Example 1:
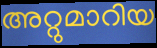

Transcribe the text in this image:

അറ്റുമാറിയ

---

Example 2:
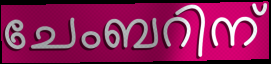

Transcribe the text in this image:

ചേംബറിന്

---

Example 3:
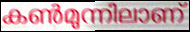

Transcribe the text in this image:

കൺമുന്നിലാണ്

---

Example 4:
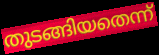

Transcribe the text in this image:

തുടങ്ങിയതെന്ന്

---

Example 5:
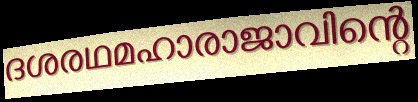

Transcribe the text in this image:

ദശരഥമഹാരാജാവിന്റെ